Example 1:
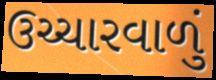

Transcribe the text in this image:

ઉચ્ચારવાળું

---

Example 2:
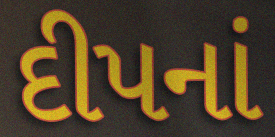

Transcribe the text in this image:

દીપનાં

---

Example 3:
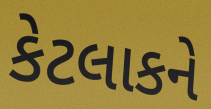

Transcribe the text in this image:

કેટલાકને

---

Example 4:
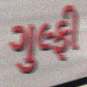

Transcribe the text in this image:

ગુલ્ફી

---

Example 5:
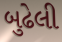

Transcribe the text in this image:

બુઢેલી